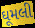
ઘૂમલી